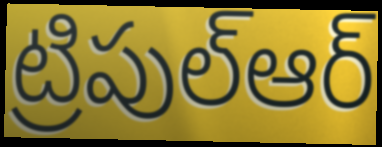
ట్రిపుల్ఆర్